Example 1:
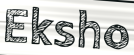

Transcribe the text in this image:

Eksho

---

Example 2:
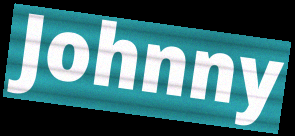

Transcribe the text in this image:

Johnny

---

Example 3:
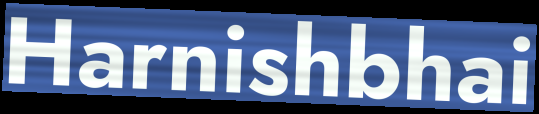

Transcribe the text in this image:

Harnishbhai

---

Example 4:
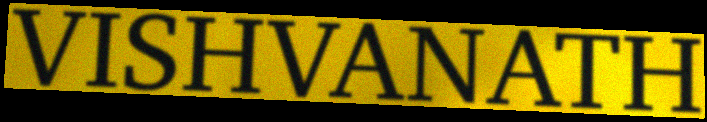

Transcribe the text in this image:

VISHVANATH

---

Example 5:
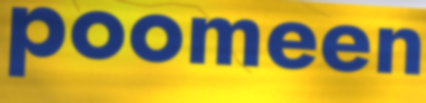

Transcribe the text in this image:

poomeen